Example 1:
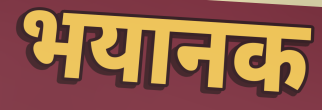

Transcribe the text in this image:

भयानक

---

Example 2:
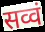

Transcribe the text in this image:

सव्वं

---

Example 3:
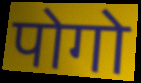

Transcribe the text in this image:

पोगो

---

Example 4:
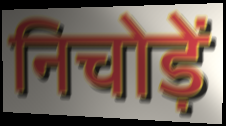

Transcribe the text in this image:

निचोड़ें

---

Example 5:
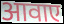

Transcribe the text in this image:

आवाए